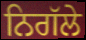
ਨਿਗੱਲੇ